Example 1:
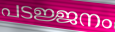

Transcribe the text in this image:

പടജ്ജനം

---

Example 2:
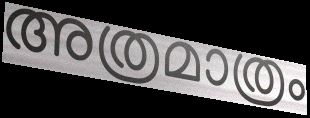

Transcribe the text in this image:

അത്രമാത്രം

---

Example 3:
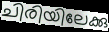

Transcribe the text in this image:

ചിരിയിലേക്കു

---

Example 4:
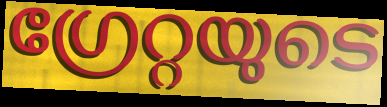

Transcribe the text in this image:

ഗ്രേറ്റയുടെ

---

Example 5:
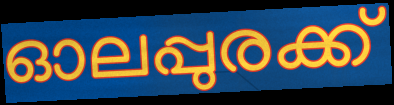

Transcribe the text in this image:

ഓലപ്പുരക്ക്